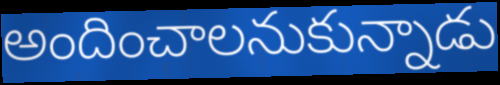
అందించాలనుకున్నాడు